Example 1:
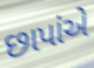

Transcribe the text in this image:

છાપાંએ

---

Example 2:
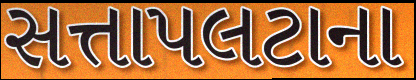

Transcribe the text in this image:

સત્તાપલટાના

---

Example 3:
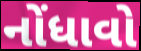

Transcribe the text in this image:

નોંધાવો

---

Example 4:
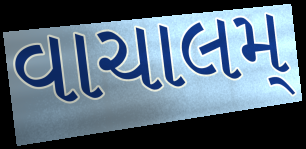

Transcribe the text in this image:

વાચાલમ્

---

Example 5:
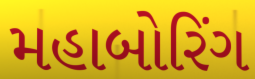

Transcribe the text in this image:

મહાબોરિંગ